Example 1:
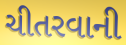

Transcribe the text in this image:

ચીતરવાની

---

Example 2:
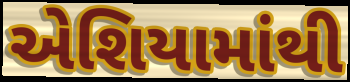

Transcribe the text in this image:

એશિયામાંથી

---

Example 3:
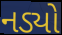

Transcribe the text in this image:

નડ્યો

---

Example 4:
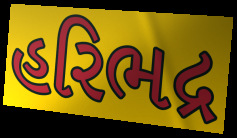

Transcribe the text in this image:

હરિભદ્ર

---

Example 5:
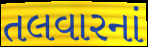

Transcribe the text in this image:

તલવારનાં